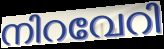
നിറവേറി